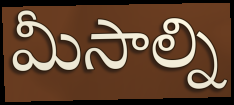
మీసాల్ని